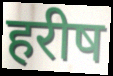
हरीष